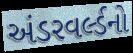
અંડરવર્લ્ડનો